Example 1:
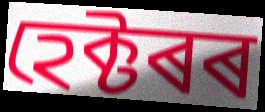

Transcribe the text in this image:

হেক্টৰৰ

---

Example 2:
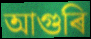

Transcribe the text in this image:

আগুৰি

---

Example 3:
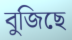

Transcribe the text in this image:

বুজিছে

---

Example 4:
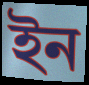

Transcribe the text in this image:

ইন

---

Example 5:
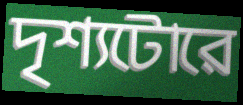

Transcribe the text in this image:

দৃশ্যটোৱে